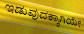
ಇಡುವುದಕ್ಕಾಗಿಯೇ